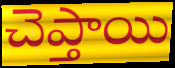
చెప్తాయి